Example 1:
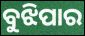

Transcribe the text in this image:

ବୁଝିପାର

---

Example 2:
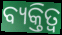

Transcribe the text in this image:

ବ୍ୟକ୍ତିତ୍ଵ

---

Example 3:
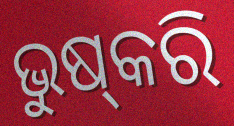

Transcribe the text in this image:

ଭୁଷ୍‌କରି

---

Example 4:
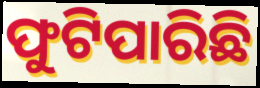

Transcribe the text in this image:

ଫୁଟିପାରିଛି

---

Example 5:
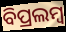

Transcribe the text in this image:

ବିପ୍ରଲମ୍ବ